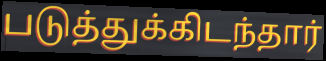
படுத்துக்கிடந்தார்